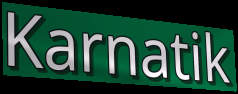
Karnatik